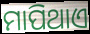
ମାପିଥାଏ